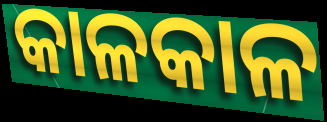
କାଳକାଳ